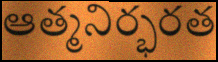
ఆత్మనిర్భరత